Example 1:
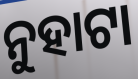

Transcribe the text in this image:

ନୁହାଟା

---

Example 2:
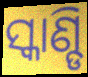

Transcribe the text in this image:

ସ୍କାଣ୍ଡି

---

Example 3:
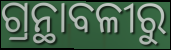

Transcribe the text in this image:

ଗ୍ରନ୍ଥାବଳୀରୁ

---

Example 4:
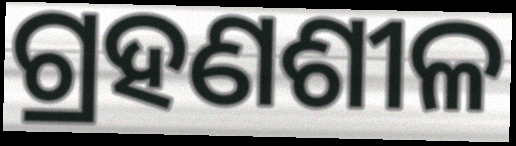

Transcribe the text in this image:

ଗ୍ରହଣଶୀଳ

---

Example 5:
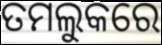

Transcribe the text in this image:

ତମଲୁକରେ